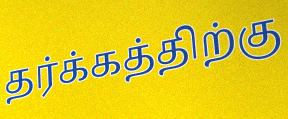
தர்க்கத்திற்கு